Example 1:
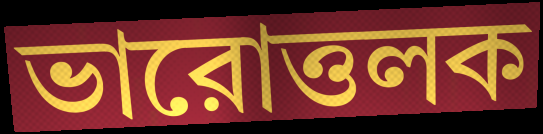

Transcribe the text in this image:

ভারোত্তলক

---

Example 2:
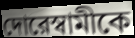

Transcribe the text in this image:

দোরেস্বামীকে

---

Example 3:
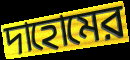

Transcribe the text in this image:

দাহোমের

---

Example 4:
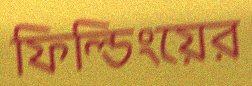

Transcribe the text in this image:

ফিল্ডিংয়ের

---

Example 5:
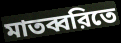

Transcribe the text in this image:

মাতব্বরিতে